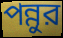
পন্নুর